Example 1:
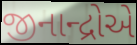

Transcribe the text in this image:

જીનાન્દ્રોએ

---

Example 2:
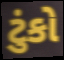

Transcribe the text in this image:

ટુંકો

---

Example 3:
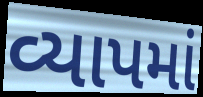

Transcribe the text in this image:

વ્યાપમાં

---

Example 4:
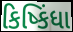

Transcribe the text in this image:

કિષ્કિંધા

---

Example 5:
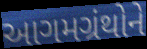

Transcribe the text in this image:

આગમગ્રંથોને